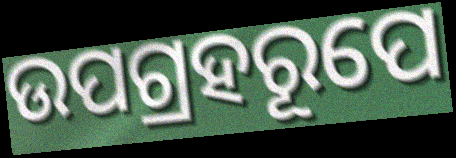
ଉପଗ୍ରହରୂପେ